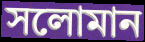
সলোমান